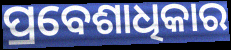
ପ୍ରବେଶାଧିକାର